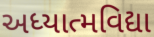
અધ્યાત્મવિદ્યા